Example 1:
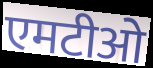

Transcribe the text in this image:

एमटीओ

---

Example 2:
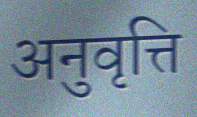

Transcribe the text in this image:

अनुवृत्ति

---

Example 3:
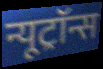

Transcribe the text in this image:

न्यूट्रॉन्स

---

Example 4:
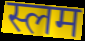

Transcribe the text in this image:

स्लम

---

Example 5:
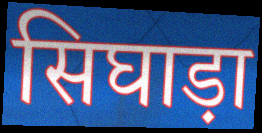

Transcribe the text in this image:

सिघाड़ा